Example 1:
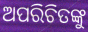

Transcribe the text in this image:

ଅପରିଚିତଙ୍କୁ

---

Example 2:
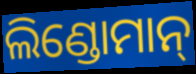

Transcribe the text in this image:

ଲିଣ୍ଡୋମାନ୍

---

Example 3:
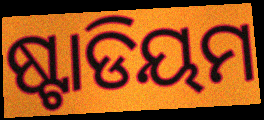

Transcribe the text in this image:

ଷ୍ଟାଡିୟମ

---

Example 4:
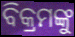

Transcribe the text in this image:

ବିକ୍ରମଙ୍କୁ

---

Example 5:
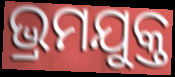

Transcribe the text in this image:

ଭ୍ରମଯୁକ୍ତ